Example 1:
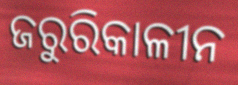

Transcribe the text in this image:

ଜରୁରିକାଳୀନ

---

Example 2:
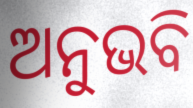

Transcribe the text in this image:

ଅନୁଭବି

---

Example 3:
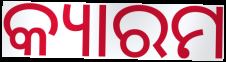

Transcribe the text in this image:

କ୍ୟାରମ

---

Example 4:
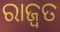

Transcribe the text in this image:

ରାଜ୍ୱତ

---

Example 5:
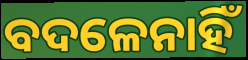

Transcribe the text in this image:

ବଦଳେନାହିଁ